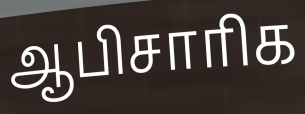
ஆபிசாரிக